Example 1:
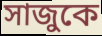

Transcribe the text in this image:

সাজুকে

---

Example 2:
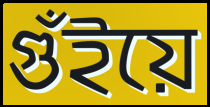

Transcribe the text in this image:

গুঁইয়ে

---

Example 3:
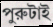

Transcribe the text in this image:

পুরুটাই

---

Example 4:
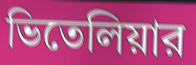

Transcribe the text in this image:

ভিতেলিয়ার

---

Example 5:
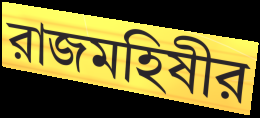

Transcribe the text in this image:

রাজমহিষীর